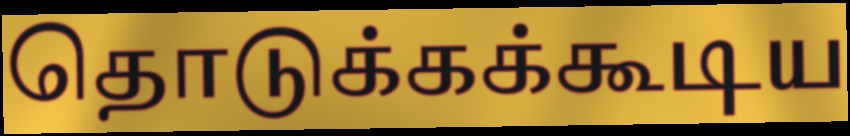
தொடுக்கக்கூடிய